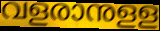
വളരാനുളള